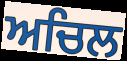
ਅਚਿਲ